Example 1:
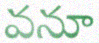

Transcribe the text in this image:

వనూ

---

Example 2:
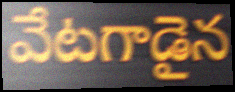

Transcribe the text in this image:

వేటగాడైన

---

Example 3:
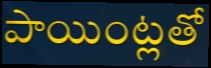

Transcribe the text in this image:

పాయింట్లతో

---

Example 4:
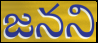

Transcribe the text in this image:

జనని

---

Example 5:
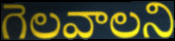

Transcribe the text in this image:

గెలవాలని